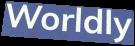
Worldly